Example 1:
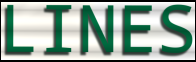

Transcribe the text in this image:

LINES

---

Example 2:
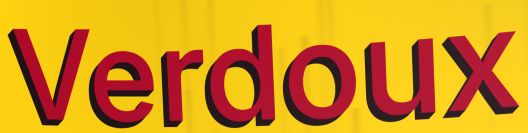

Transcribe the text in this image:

Verdoux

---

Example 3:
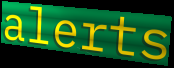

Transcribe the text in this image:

alerts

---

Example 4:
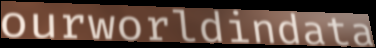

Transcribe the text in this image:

ourworldindata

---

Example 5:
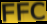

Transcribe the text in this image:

FFC